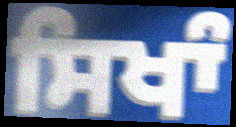
ਸਿਖਾੰ